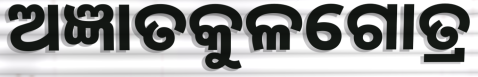
ଅଜ୍ଞାତକୁଳଗୋତ୍ର